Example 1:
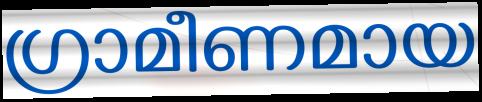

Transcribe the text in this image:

ഗ്രാമീണമായ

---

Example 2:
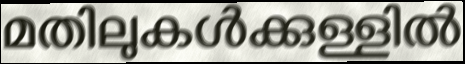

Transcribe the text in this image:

മതിലുകൾക്കുള്ളിൽ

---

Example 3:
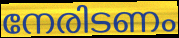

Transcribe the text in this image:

നേരിടണം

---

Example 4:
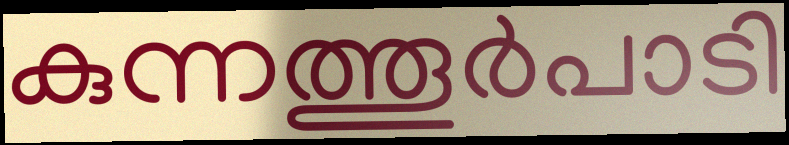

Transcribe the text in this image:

കുന്നത്തൂർപാടി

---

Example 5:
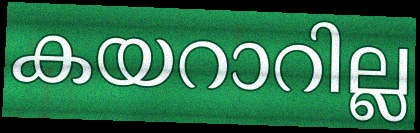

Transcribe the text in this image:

കയറാറില്ല